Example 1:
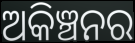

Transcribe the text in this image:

ଅକିଞ୍ଚନର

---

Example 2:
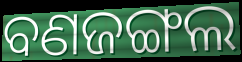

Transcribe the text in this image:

ବଣଜଙ୍ଗଲ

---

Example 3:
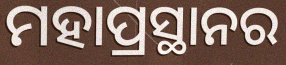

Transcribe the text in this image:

ମହାପ୍ରସ୍ଥାନର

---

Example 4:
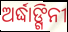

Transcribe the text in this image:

ଅର୍ଦ୍ଧାଙ୍ଗିନୀ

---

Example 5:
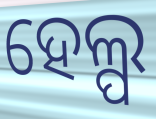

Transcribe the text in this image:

ହେଲ୍ପ